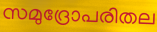
സമുദ്രോപരിതല